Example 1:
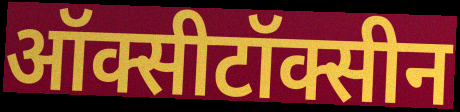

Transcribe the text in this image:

ऑक्सीटॉक्सीन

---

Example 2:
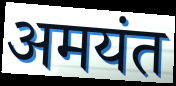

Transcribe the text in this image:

अमयंत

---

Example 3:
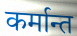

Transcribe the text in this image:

कर्मान्त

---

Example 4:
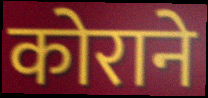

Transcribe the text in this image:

कोराने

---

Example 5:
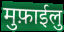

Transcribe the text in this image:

मुफ़ाईलु